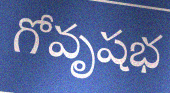
గోవృషభ